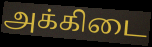
அக்கிடை